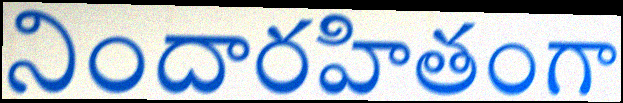
నిందారహితంగా